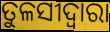
ତୁଳସୀଦ୍ବାରା